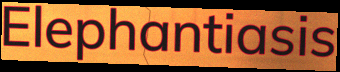
Elephantiasis